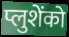
प्लुशेंको